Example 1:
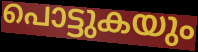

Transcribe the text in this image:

പൊട്ടുകയും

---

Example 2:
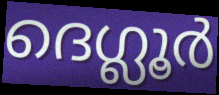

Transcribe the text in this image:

ദെഗ്ലൂർ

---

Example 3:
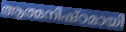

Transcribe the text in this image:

ആത്മനിഷ്ഠമായി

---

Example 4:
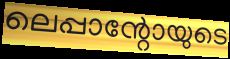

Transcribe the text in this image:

ലെപ്പാന്റോയുടെ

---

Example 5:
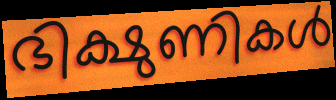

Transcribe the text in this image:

ഭിക്ഷുണികൾ